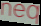
neq